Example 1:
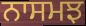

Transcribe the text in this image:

ਨਾਸਮਝ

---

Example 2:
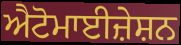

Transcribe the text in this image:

ਐਟੋਮਾਈਜ਼ੇਸ਼ਨ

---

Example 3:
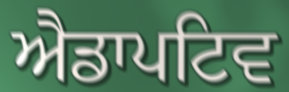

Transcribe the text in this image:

ਐਡਾਪਟਿਵ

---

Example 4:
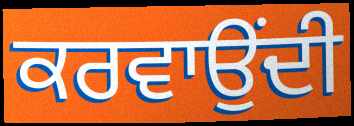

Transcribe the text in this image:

ਕਰਵਾਉਂਦੀ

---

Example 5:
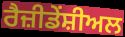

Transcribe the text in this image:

ਰੈਜ਼ੀਡੇਂਸ਼ੀਅਲ